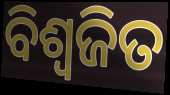
ବିଶ୍ଵଜିତ